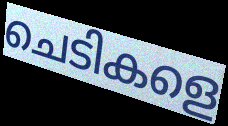
ചെടികളെ